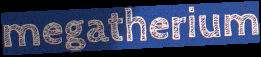
megatherium